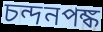
চন্দনপঙ্ক